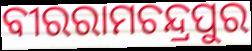
ବୀରରାମଚନ୍ଦ୍ରପୁର